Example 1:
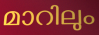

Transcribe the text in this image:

മാറിലും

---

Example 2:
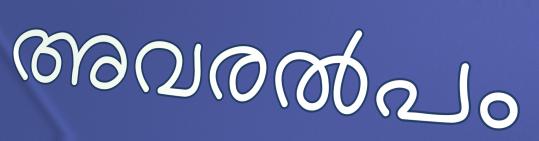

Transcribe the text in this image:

അവരൽപം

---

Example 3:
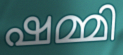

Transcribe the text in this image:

ഷമ്മി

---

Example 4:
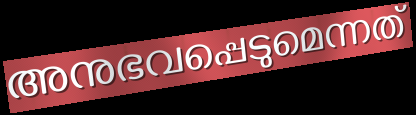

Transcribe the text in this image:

അനുഭവപ്പെടുമെന്നത്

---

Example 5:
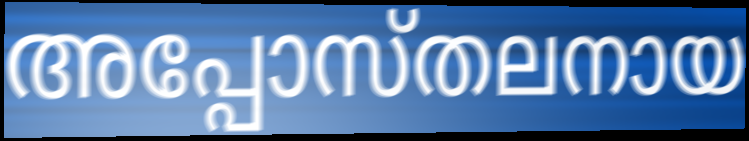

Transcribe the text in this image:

അപ്പോസ്തലനായ